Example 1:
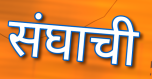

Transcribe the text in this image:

संघाची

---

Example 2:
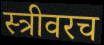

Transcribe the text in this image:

स्त्रीवरच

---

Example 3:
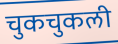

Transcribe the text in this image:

चुकचुकली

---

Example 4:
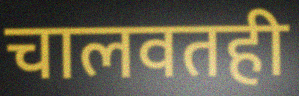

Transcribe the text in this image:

चालवतही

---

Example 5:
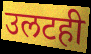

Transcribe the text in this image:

उलटही